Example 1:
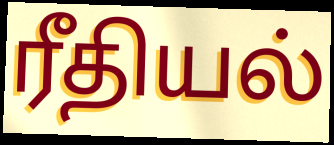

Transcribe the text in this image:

ரீதியல்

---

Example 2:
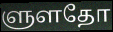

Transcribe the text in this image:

ளுளதோ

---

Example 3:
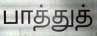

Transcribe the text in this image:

பாத்துத்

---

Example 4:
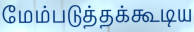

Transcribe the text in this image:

மேம்படுத்தக்கூடிய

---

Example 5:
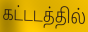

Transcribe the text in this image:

கட்டடத்தில்